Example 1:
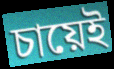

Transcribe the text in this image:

চায়েই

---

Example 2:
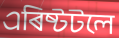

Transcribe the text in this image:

এৰিষ্টটলে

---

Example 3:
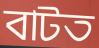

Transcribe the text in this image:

বাটত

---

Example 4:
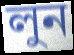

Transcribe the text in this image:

লুন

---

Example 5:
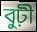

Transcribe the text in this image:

বুঢ়ী